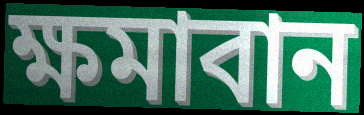
ক্ষমাবান